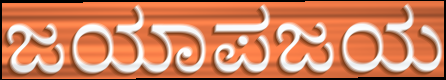
ಜಯಾಪಜಯ